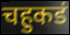
चहुकडं